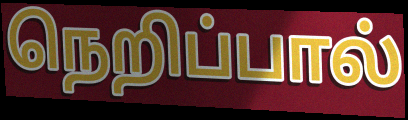
நெறிப்பால்